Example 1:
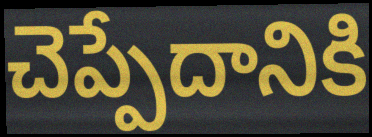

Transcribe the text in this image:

చెప్పేదానికి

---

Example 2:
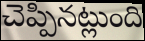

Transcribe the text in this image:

చెప్పినట్లుంది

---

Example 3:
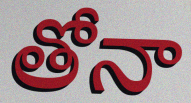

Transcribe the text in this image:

తోనా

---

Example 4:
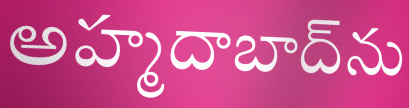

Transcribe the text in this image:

అహ్మదాబాద్‌ను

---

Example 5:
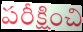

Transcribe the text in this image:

పరీక్షించి